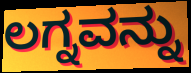
ಲಗ್ನವನ್ನು